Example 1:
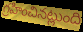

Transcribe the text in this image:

గ్రహించినట్లుంది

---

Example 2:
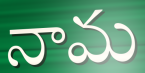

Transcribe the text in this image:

నామ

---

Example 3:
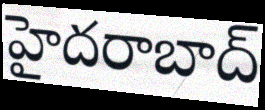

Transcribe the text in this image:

హైదరాబాద్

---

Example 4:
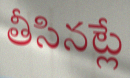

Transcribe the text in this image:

తీసినట్లే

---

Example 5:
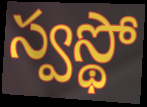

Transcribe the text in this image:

స్వస్థో